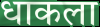
धाकला